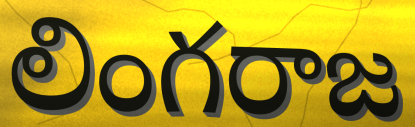
లింగరాజ